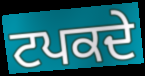
ਟਪਕਦੇ